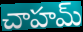
చాహమ్